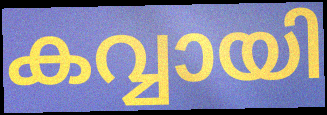
കവ്വായി